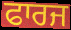
ਫਾਰਜ